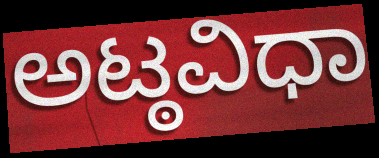
ಅಟ್ಠವಿಧಾ